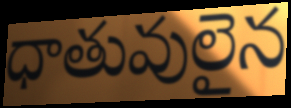
ధాతువులైన